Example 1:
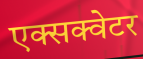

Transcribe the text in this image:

एक्सक्वेटर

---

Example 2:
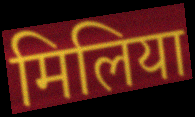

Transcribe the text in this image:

मिलिया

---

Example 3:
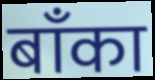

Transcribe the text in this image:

बाँका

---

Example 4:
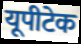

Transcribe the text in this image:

यूपीटेक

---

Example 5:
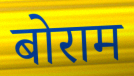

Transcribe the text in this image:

बोराम